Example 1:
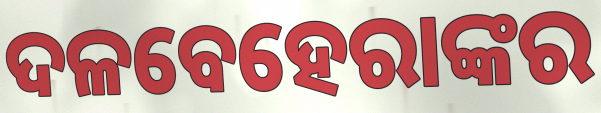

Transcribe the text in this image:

ଦଳବେହେରାଙ୍କର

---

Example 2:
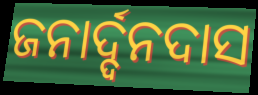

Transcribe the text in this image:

ଜନାର୍ଦ୍ଦନଦାସ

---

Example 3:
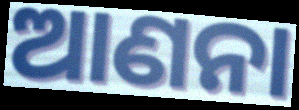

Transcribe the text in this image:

ଆଣନା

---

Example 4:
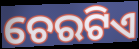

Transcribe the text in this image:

ଚେରଟିଏ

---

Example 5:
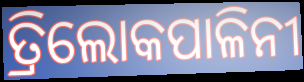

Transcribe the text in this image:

ତ୍ରିଲୋକପାଳିନୀ